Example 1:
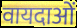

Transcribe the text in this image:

वायदाओं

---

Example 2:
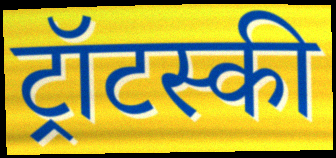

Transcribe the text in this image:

ट्रॉटस्की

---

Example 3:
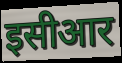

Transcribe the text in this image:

इसीआर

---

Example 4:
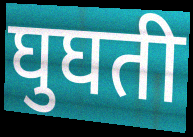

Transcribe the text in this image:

घुघती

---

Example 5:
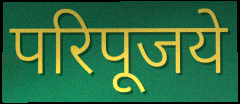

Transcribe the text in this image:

परिपूजये